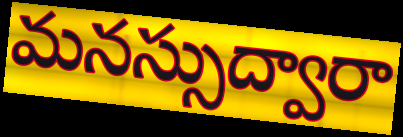
మనస్సుద్వారా